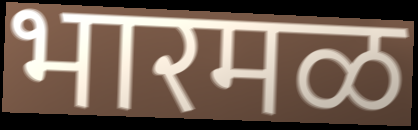
भारमळ